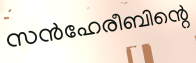
സൻഹേരീബിന്റെ